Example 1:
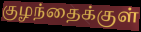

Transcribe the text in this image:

குழந்தைக்குள்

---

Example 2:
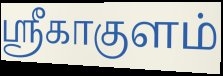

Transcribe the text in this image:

ஸ்ரீகாகுளம்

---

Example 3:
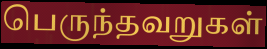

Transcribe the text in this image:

பெருந்தவறுகள்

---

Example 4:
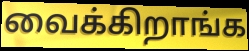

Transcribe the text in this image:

வைக்கிறாங்க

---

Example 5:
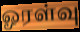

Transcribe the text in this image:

ஓரள்வு